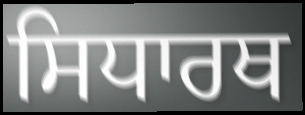
ਸਿਧਾਰਥ